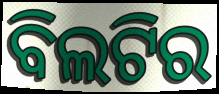
ବିଲଟିର